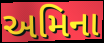
અમિના